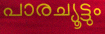
പാരച്യൂട്ടും